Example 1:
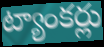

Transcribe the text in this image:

ట్యాంకర్లు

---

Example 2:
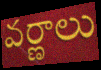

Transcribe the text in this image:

వర్ణాలు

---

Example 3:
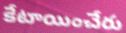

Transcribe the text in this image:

కేటాయించేరు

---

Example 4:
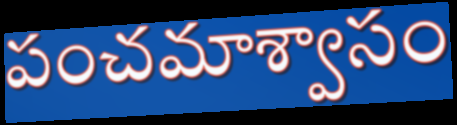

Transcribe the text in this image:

పంచమాశ్వాసం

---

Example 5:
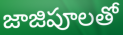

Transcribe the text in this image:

జాజిపూలతో